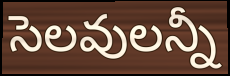
సెలవులన్నీ